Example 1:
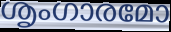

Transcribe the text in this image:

ശൃംഗാരമോ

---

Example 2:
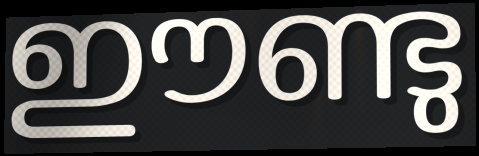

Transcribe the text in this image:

ഈണ്ടു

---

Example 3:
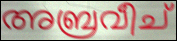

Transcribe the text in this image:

അബ്രവീച്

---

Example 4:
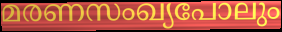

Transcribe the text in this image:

മരണസംഖ്യപോലും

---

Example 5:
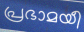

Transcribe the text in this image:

പ്രഭാമയീ